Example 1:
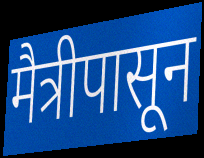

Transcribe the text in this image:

मैत्रीपासून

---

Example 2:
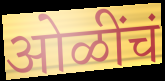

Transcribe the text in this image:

ओळींचं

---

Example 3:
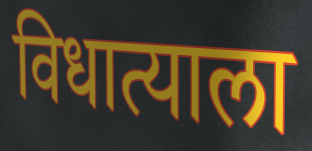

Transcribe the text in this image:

विधात्याला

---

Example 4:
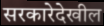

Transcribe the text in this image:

सरकारेदेखील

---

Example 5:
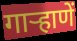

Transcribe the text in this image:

गार्‍हाणें